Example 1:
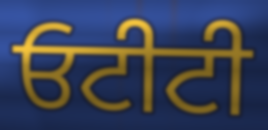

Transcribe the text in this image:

ਓਟੀਟੀ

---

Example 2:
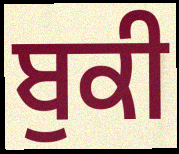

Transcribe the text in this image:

ਬੁਕੀ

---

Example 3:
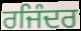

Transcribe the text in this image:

ਰਜਿੰਦਰ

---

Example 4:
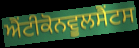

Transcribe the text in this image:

ਐਂਟੀਕੋਨਵੂਲਸੈਂਟਸ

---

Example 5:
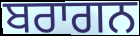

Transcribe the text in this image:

ਬਰਾਗਨ